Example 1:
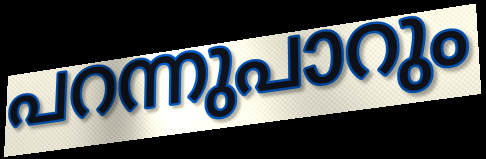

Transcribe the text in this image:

പറന്നുപാറും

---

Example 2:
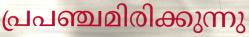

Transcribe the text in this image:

പ്രപഞ്ചമിരിക്കുന്നു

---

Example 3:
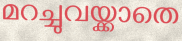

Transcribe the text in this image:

മറച്ചുവയ്ക്കാതെ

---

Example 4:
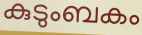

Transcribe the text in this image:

കുടുംബകം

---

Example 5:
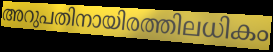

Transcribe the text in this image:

അറുപതിനായിരത്തിലധികം